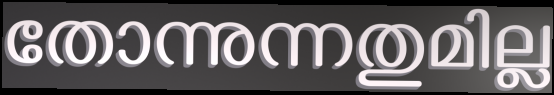
തോന്നുന്നതുമില്ല